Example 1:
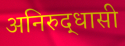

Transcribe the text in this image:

अनिरुद्धासी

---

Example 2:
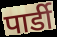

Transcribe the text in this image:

पार्डी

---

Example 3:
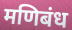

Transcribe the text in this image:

मणिबंध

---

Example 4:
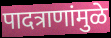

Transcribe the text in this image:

पादत्राणांमुळे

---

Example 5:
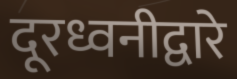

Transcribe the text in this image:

दूरध्वनीद्वारे